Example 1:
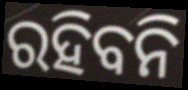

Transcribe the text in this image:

ରହିବନି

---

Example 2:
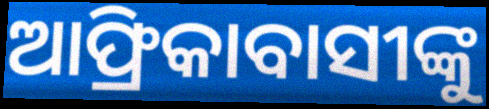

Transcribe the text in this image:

ଆଫ୍ରିକାବାସୀଙ୍କୁ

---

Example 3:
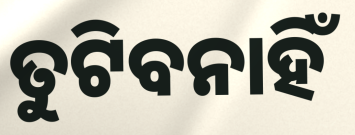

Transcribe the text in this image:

ତୁଟିବନାହିଁ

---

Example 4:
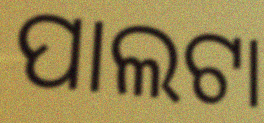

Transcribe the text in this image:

ପାଲଟା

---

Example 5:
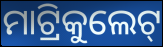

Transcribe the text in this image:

ମାଟ୍ରିକୁଲେଟ୍